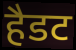
हैडट